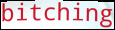
bitching